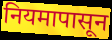
नियमापासून